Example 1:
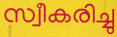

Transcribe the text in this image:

സ്വീകരിച്ചു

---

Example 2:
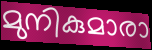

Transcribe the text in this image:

മുനികുമാരാ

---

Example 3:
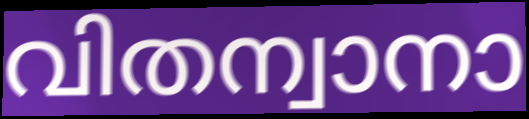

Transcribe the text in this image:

വിതന്വാനാ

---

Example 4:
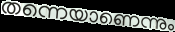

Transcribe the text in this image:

തന്നെയാണെന്നും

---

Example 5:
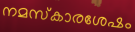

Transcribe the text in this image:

നമസ്കാരശേഷം